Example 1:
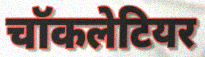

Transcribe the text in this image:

चॉकलेटियर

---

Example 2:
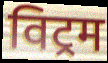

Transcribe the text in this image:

विट्रम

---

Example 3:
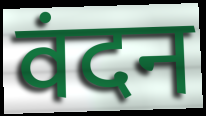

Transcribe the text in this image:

वंदन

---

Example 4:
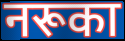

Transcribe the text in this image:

नरूका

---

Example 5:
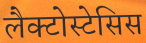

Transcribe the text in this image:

लैक्टोस्टेसिस